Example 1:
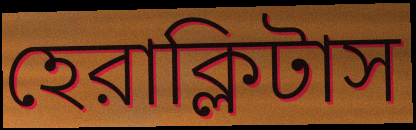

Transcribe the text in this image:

হেরাক্লিটাস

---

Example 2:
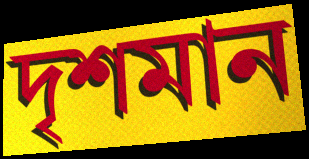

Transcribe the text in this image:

দৃশমান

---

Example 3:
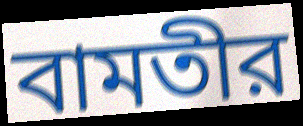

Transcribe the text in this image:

বামতীর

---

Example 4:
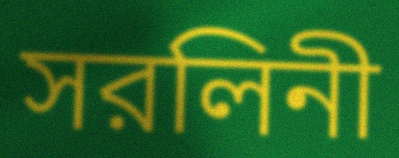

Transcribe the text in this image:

সরলিনী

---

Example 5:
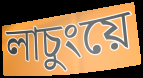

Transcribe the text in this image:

লাচুংয়ে